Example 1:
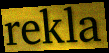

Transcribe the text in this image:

rekla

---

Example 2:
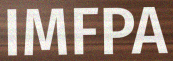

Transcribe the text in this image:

IMFPA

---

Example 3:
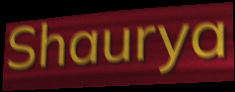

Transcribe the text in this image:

Shaurya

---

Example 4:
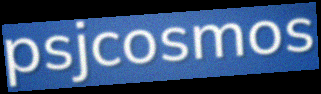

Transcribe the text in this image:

psjcosmos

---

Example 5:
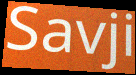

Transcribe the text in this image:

Savji